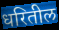
धरितील